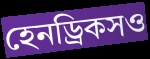
হেনড্রিকসও